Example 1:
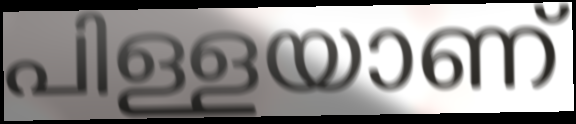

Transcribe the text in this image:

പിള്ളയാണ്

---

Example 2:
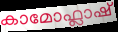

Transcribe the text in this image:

കാമോഫ്ലാഷ്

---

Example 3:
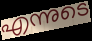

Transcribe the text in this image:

എന്നുടെ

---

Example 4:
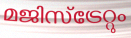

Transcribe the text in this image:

മജിസ്ട്രേറ്റും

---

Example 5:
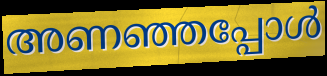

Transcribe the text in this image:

അണഞ്ഞപ്പോൾ